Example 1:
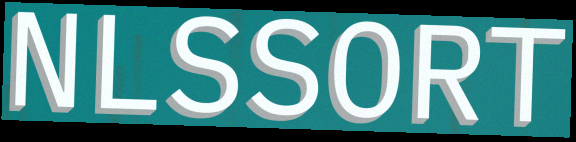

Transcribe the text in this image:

NLSSORT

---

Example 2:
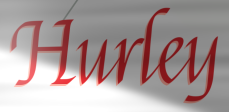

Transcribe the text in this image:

Hurley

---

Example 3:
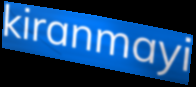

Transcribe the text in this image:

kiranmayi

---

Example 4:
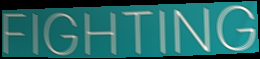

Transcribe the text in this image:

FIGHTING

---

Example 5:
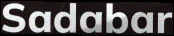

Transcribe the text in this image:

Sadabar